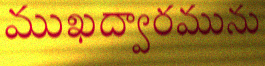
ముఖద్వారమును